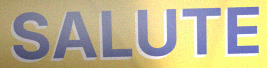
SALUTE